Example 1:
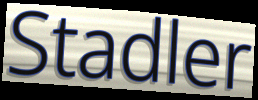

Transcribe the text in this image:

Stadler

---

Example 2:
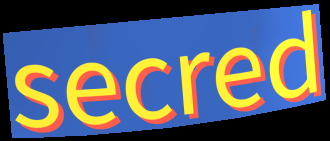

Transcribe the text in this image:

secred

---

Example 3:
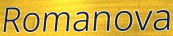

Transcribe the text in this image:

Romanova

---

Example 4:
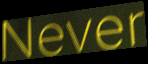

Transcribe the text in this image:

Never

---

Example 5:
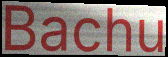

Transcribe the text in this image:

Bachu